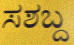
ಸಶಬ್ದ